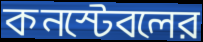
কনস্টেবলের